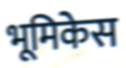
भूमिकेस